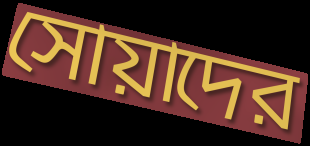
সোয়াদের